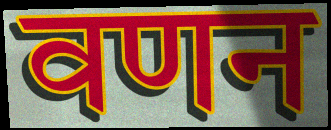
वणन